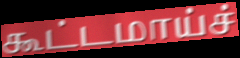
கூட்டமாய்ச்